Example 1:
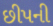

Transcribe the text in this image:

છીપની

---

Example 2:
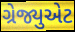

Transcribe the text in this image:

ગ્રેજ્યુએટ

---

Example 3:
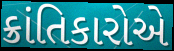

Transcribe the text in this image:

ક્રાંતિકારોએ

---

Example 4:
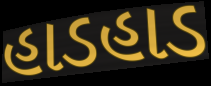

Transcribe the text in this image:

હાડહાડ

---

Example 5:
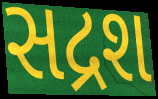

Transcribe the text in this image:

સદ્રશ